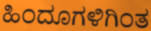
ಹಿಂದೂಗಳಿಗಿಂತ